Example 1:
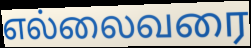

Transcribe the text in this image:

எல்லைவரை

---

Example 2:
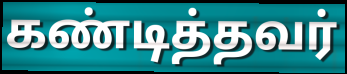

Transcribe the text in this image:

கண்டித்தவர்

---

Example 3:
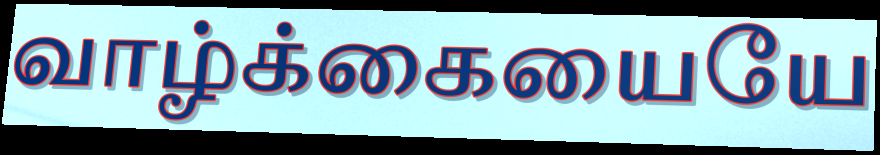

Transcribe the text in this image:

வாழ்க்கையையே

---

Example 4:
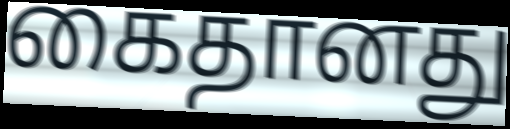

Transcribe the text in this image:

கைதானது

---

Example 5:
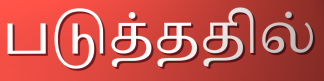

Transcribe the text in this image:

படுத்ததில்